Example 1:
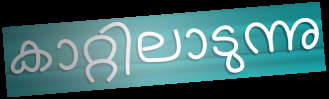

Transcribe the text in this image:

കാറ്റിലാടുന്നു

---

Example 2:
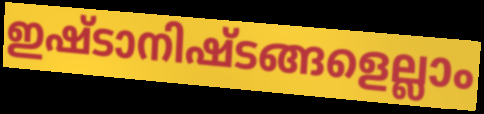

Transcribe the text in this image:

ഇഷ്ടാനിഷ്ടങ്ങളെല്ലാം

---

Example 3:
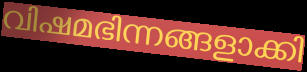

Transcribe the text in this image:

വിഷമഭിന്നങ്ങളാക്കി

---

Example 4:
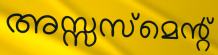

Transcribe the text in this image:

അസ്സസ്മെന്റ്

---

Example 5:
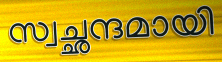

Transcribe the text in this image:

സ്വച്ഛന്ദമായി